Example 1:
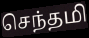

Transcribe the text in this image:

செந்தமி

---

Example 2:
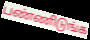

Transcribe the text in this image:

பண்ணிடுங்க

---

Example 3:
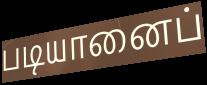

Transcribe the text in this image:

படியானைப்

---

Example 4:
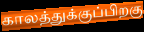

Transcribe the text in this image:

காலத்துக்குப்பிறகு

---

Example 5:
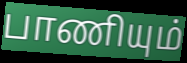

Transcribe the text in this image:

பாணியும்